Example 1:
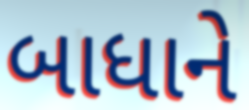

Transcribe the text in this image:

બાધાને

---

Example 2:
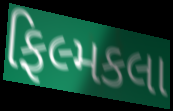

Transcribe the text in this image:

ફિલ્મકલા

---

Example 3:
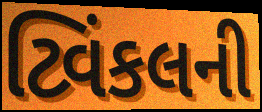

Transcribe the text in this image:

ટ્વિંકલની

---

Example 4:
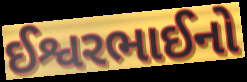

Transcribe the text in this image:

ઈશ્વરભાઈનો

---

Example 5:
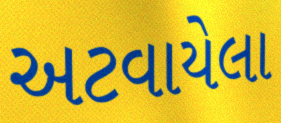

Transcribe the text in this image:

અટવાયેલા